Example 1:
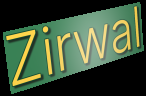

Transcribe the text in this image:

Zirwal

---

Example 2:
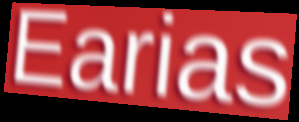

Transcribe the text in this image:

Earias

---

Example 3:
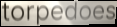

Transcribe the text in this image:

torpedoes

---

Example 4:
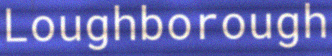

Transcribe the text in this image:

Loughborough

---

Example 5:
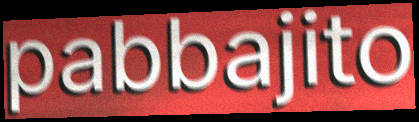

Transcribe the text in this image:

pabbajito